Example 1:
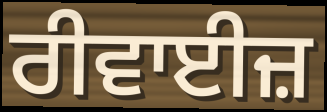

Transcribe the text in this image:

ਰੀਵਾਈਜ਼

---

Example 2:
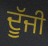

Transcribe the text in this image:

ਦੂੱਜੀ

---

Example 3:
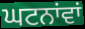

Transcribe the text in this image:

ਘਟਨਾਂਵਾਂ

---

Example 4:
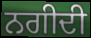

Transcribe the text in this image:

ਨਗੀਦੀ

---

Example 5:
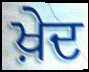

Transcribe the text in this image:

ਖ਼ੇਦ